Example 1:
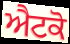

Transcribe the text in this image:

ਐਟਕੋ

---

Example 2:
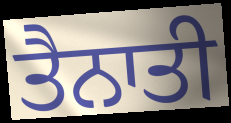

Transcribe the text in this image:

ਤੈਨਾਤੀ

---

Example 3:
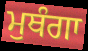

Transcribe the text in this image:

ਮੁਥੰਗਾ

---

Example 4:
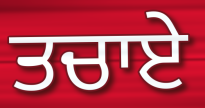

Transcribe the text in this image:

ਤਚਾਏ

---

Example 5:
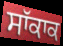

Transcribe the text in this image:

ਸਾੱਕਾਕ